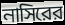
নাসিরের